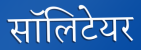
सॉलिटेयर